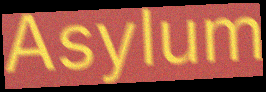
Asylum